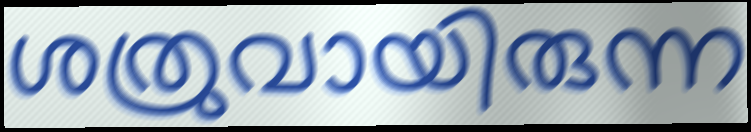
ശത്രുവായിരുന്ന